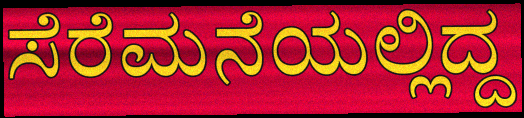
ಸೆರೆಮನೆಯಲ್ಲಿದ್ದ